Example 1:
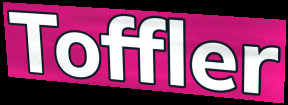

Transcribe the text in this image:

Toffler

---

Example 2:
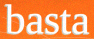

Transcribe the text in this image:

basta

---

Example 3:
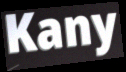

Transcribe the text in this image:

Kany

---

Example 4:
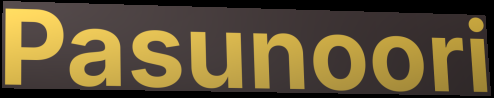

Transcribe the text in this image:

Pasunoori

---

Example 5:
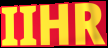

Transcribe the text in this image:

IIHR